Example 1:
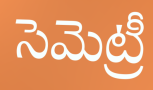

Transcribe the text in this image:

సెమెట్రీ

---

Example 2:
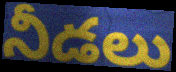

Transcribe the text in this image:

నీడలు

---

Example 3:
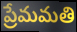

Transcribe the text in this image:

ప్రేమమతి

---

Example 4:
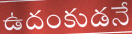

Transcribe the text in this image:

ఉదంకుడనే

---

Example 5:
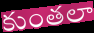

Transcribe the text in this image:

కుంతలా